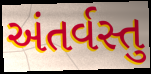
અંતર્વસ્તુ